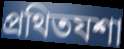
প্ৰথিতযশা